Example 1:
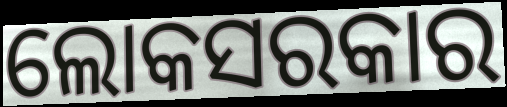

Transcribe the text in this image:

ଲୋକସରକାର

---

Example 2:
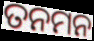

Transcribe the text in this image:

ତନମନ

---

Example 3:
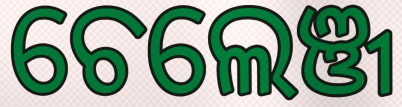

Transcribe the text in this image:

ଚେଲେଞ୍ଜ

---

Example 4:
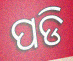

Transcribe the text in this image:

ପଡି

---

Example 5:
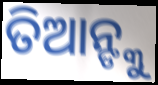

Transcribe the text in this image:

ତିଆନ୍ଙ୍କୁ